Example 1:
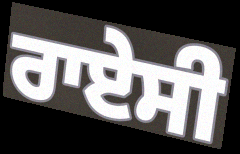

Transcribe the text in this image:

ਰਾਏਸੀ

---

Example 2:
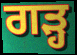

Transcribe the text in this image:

ਗੜ੍ਹ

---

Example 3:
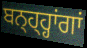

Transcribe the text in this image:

ਬਨ੍ਹ੍ਹ੍ਹਾਂਗਾਂ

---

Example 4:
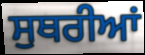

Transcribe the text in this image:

ਸੁਥਰੀਆਂ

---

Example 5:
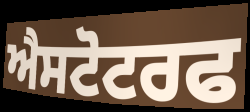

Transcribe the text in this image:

ਐਸਟੋਟਰਫ